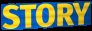
STORY